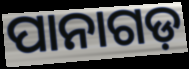
ପାନାଗଡ଼